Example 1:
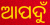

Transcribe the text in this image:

ଆପଦୁଁ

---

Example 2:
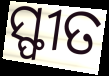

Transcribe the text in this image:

ସ୍ଫୀତ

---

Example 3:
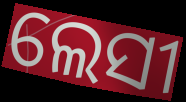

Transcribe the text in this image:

ଲେସୀ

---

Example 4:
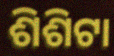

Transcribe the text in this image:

ଶିଶିଟା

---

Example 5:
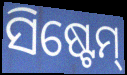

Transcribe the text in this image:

ସିଷ୍ଟେମ୍